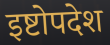
इष्टोपदेश